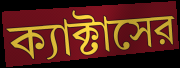
ক্যাক্টাসের